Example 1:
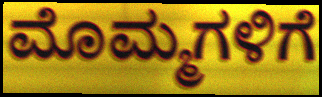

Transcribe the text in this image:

ಮೊಮ್ಮಗಳಿಗೆ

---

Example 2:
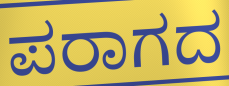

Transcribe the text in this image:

ಪರಾಗದ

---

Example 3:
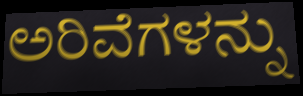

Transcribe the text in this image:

ಅರಿವೆಗಳನ್ನು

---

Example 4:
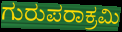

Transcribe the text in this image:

ಗುರುಪರಾಕ್ರಮಿ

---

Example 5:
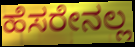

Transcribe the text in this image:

ಹೆಸರೇನಲ್ಲ